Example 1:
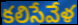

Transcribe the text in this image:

కలిసేవేళ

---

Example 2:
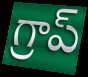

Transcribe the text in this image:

గ్రాప్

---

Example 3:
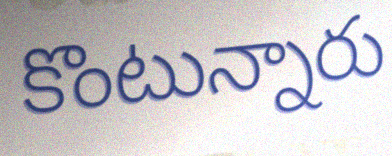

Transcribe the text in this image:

కొంటున్నారు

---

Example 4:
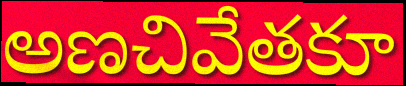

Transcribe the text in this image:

అణచివేతకూ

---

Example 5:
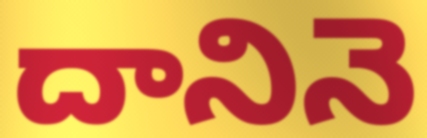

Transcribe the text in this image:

దానినె